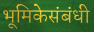
भूमिकेसंबंधी